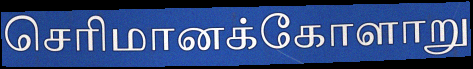
செரிமானக்கோளாறு